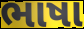
ભાષા